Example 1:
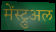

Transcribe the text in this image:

मेंस्ट्रुअल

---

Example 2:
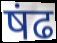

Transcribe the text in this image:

षंढ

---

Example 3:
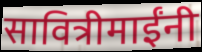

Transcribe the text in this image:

सावित्रीमाईंनी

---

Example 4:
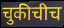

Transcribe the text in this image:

चुकीचीच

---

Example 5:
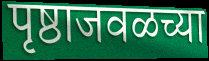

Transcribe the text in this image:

पृष्ठाजवळच्या